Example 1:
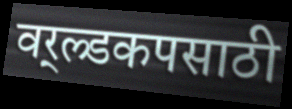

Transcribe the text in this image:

वर्ल्डकपसाठी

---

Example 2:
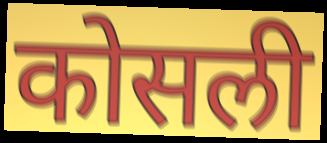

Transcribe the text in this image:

कोसली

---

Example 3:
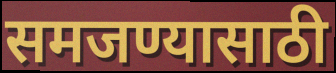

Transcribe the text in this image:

समजण्यासाठी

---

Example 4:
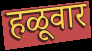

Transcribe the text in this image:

हळूवार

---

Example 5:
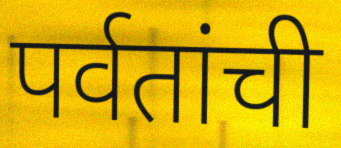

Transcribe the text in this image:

पर्वतांची